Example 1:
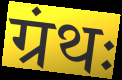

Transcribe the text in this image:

ग्रंथः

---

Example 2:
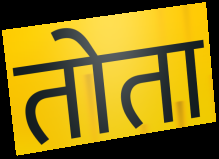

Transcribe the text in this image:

तोता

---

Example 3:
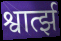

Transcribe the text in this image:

श्वार्त्झ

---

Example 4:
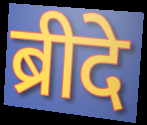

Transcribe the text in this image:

ब्रीदे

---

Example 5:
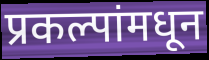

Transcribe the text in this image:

प्रकल्पांमधून